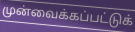
முன்வைக்கப்பட்டுக்